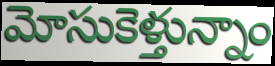
మోసుకెళ్తున్నాం